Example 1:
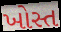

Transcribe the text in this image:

ખોસ્ત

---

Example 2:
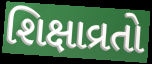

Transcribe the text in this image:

શિક્ષાવ્રતો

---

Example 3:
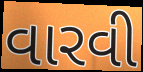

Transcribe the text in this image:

વારવી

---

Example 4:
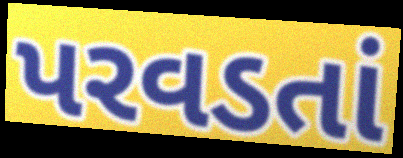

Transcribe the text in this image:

પરવડતાં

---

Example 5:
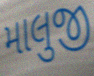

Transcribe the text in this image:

માલુજી